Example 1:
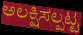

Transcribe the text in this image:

ಅಲಕ್ಷಿಸಲ್ಪಟ್ಟ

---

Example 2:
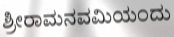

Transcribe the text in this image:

ಶ್ರೀರಾಮನವಮಿಯಂದು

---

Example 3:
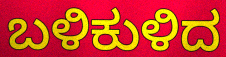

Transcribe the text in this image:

ಬಳಿಕುಳಿದ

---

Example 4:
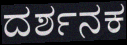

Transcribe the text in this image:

ದರ್ಶನಕ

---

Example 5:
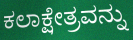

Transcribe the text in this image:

ಕಲಾಕ್ಷೇತ್ರವನ್ನು